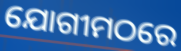
ଯୋଗୀମଠରେ